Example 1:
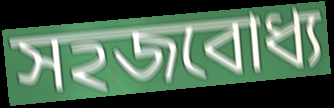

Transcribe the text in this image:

সহজবোধ্য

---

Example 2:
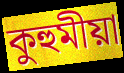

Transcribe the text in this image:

কুহুমীয়া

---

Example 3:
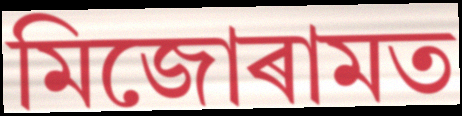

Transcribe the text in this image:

মিজোৰামত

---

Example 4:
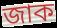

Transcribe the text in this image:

জাক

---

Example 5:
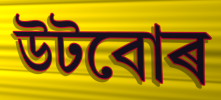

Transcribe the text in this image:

উটবোৰ